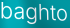
baghto